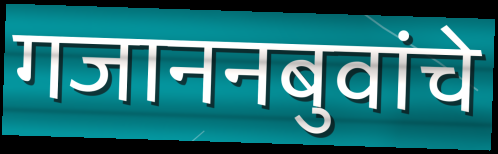
गजाननबुवांचे